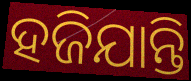
ହଜିଯାନ୍ତି